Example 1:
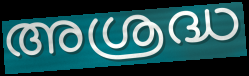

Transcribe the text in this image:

അശ്രദ്ധ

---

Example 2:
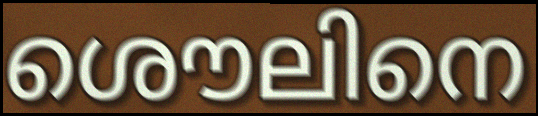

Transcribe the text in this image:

ശൌലിനെ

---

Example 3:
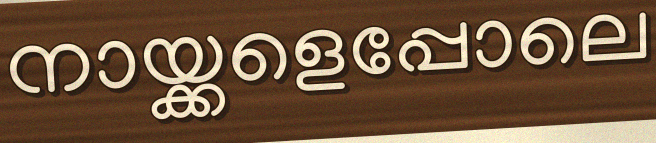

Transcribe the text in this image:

നായ്ക്കളെപ്പോലെ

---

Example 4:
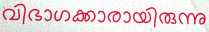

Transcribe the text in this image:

വിഭാഗക്കാരായിരുന്നു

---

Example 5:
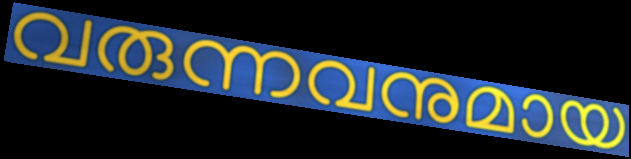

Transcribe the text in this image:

വരുന്നവനുമായ